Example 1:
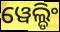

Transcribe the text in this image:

ୱେଲ୍ଡିଂ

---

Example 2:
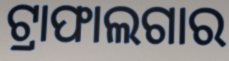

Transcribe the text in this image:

ଟ୍ରାଫାଲଗାର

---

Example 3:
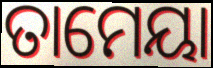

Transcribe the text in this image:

ତାମେୟା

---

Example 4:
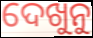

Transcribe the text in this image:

ଦେଖୁନୁ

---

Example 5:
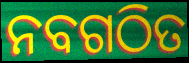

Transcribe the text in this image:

ନବଗଠିତ